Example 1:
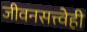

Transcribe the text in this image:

जीवनसत्त्वेही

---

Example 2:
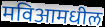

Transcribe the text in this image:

मविआमधील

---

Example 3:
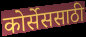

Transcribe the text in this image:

कोर्सेससाठी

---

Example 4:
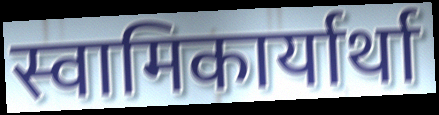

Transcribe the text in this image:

स्वामिकार्यार्था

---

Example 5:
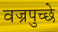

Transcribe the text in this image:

वज्रपुच्छे